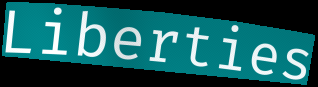
Liberties